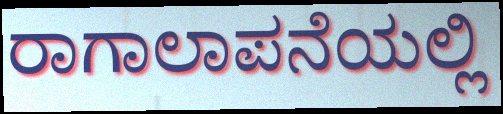
ರಾಗಾಲಾಪನೆಯಲ್ಲಿ